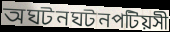
অঘটনঘটনপটিয়সী